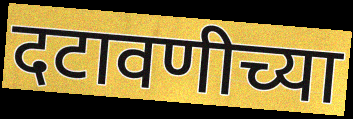
दटावणीच्या